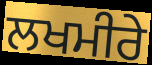
ਲਖਮੀਰੇ